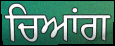
ਚਿਆਂਗ